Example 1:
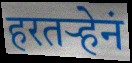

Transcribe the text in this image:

हरतर्‍हेनं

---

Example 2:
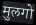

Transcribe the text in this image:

मुलगो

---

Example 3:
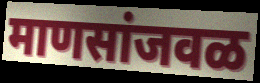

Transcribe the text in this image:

माणसांजवळ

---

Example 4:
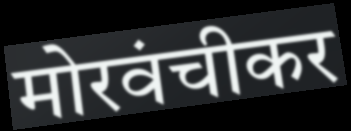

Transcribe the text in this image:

मोरवंचीकर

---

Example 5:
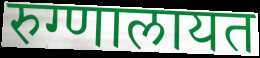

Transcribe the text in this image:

रुग्णालायत